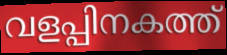
വളപ്പിനകത്ത്